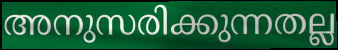
അനുസരിക്കുന്നതല്ല